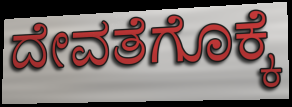
ದೇವತೆಗೊಕ್ಕೆ